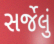
સર્જેલું